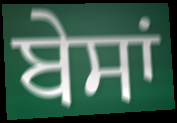
ਬੇਸਾਂ